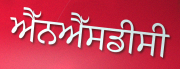
ਐੱਨਐੱਸਡੀਸੀ